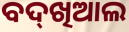
ବଦ୍‌ଖିଆଲ